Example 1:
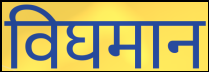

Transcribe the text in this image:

विघमान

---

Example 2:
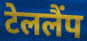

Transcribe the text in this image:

टेललैंप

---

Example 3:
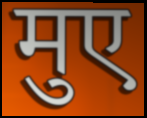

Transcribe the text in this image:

मुए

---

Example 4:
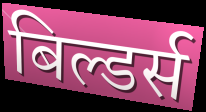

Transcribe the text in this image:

बिल्डर्स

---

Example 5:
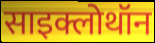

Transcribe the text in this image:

साइक्लोथॉन